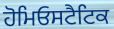
ਹੋਮਿਓਸਟੈਟਿਕ